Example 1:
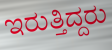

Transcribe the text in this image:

ಇರುತ್ತಿದ್ದರು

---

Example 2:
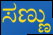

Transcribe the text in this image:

ಸಣ್ಣು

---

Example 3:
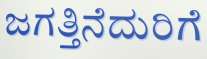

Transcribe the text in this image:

ಜಗತ್ತಿನೆದುರಿಗೆ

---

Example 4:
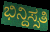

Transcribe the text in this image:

ಭಿನ್ದಿಸ್ಸತಿ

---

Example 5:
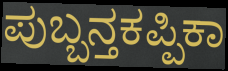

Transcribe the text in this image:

ಪುಬ್ಬನ್ತಕಪ್ಪಿಕಾ